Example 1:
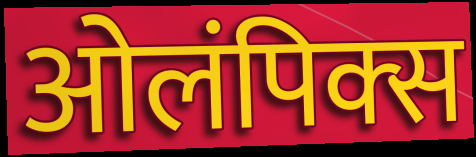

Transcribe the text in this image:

ओलंपिक्‍स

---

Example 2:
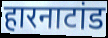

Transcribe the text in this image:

हारनाटांड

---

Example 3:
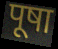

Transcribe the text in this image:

पूषा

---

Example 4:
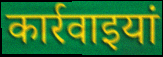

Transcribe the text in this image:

कार्रवाइयां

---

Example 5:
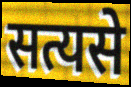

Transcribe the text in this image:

सत्यसे